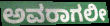
ಅವರಾಗಲೀ